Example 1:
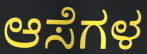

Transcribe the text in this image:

ಆಸೆಗಳ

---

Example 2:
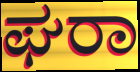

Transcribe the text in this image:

ಘರಾ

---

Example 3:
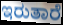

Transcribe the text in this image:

ಇರುತಾರೆ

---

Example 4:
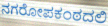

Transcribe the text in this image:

ನಗರೋಪಕಂಠದಲಿ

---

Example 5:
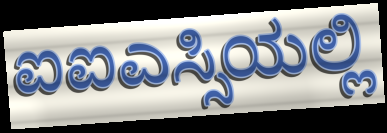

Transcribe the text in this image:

ಐಐಎಸ್ಸಿಯಲ್ಲಿ